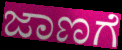
ಜಾಣಗೆ